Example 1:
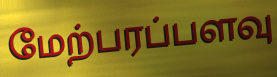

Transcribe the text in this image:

மேற்பரப்பளவு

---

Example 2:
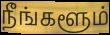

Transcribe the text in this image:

நீங்களூம்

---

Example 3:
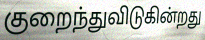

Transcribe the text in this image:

குறைந்துவிடுகின்றது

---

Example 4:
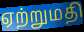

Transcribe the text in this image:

ஏற்றுமதி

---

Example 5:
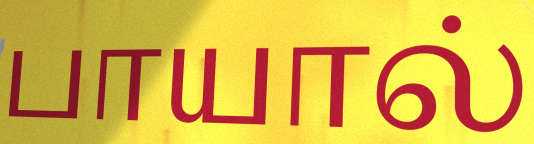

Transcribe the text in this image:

பாயால்